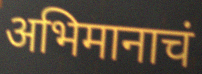
अभिमानाचं